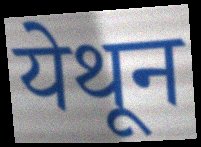
येथून